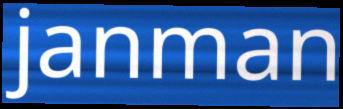
janman